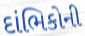
દાંભિકોની